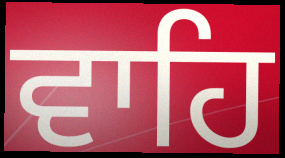
ਵਾਹਿ